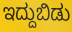
ಇದ್ದುಬಿಡು